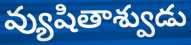
వ్యుషితాశ్వుడు